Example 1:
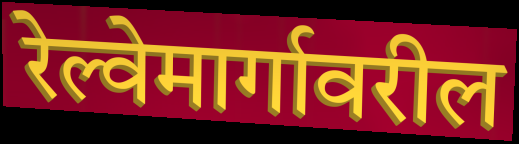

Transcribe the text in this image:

रेल्वेमार्गावरील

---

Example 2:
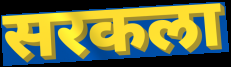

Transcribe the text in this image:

सरकला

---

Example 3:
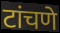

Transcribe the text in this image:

टांचणे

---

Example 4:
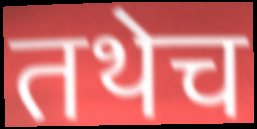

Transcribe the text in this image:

तथेच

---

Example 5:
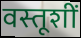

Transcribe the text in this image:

वस्तूशीं